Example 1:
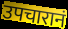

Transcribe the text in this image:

उपचारानं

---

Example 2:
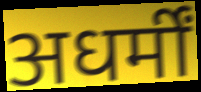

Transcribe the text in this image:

अधर्मीं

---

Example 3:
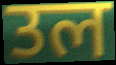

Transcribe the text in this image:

उल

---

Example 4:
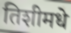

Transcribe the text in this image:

तिशीमधे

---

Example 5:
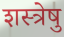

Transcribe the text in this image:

शस्त्रेषु